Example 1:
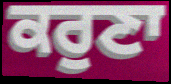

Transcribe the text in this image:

ਕਰੁਣਾ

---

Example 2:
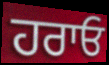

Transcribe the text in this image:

ਹਰਾਓ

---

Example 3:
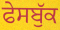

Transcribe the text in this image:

ਫੇਸਬੁੱਕ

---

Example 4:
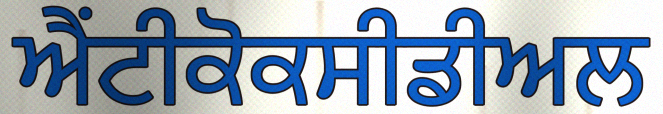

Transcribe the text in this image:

ਐਂਟੀਕੋਕਸੀਡੀਅਲ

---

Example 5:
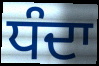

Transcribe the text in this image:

ਧੰਦਾ